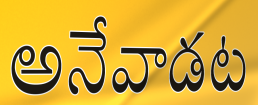
అనేవాడట